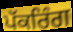
ਪੱਕਰਿੰਗ